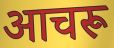
आचरू